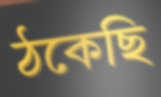
ঠকেছি